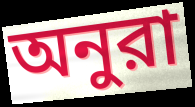
অনুরা